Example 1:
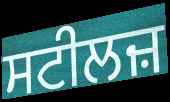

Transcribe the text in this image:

ਸਟੀਲਜ਼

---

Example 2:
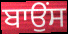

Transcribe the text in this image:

ਬਾਉਂਸ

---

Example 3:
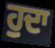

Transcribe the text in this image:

ਹੁਦਾ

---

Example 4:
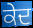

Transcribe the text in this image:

ਕੇਦ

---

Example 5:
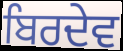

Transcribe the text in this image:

ਬਿਰਦੇਵ